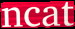
ncat